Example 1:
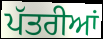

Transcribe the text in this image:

ਪੱਤਰੀਆਂ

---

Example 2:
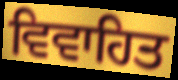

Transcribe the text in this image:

ਵਿਵਾਹਿਤ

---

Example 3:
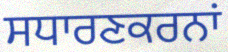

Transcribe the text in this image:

ਸਧਾਰਣਕਰਨਾਂ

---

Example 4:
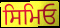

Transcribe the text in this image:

ਸਿਮਿਓ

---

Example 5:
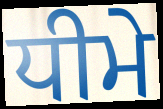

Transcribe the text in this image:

ਧੀਮੇ